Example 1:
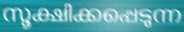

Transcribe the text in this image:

സൂക്ഷിക്കപ്പെടുന്ന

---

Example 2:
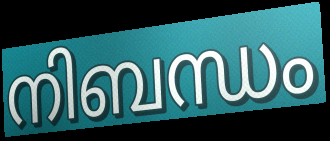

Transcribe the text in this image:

നിബന്ധം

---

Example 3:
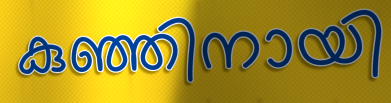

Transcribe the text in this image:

കുഞ്ഞിനായി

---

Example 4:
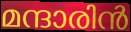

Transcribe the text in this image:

മന്ദാരിൻ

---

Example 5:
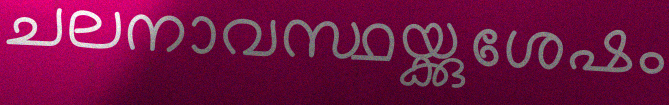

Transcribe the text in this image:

ചലനാവസ്ഥയ്ക്കുശേഷം